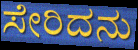
ಸೇರಿದನು